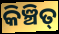
କିଞ୍ଚିତ୍